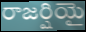
రాజర్షియై